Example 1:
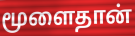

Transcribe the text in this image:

மூளைதான்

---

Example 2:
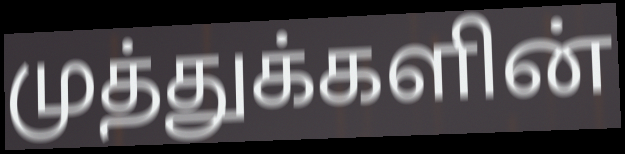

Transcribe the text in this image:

முத்துக்களின்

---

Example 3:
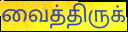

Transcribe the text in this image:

வைத்திருக்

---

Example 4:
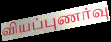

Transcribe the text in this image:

வியப்புணர்வு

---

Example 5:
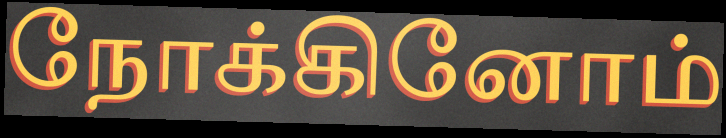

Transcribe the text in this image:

நோக்கினோம்